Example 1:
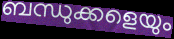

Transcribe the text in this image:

ബന്ധുക്കളെയും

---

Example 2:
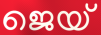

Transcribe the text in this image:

ജെയ്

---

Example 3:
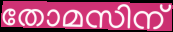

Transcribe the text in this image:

തോമസിന്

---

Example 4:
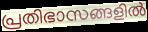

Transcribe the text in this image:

പ്രതിഭാസങ്ങളിൽ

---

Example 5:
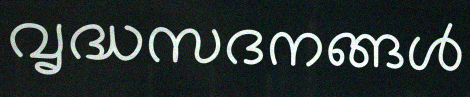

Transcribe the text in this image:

വൃദ്ധസദനങ്ങൾ